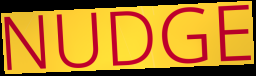
NUDGE